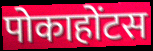
पोकाहोंटस